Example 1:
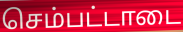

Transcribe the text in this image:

செம்பட்டாடை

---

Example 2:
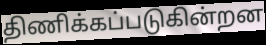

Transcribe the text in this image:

திணிக்கப்படுகின்றன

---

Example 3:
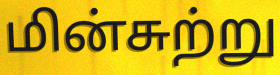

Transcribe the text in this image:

மின்சுற்று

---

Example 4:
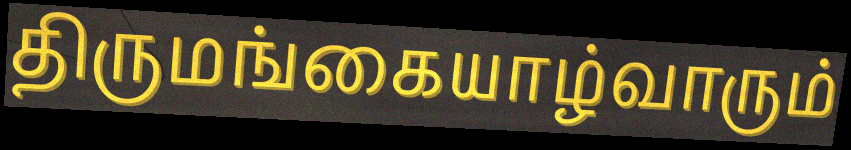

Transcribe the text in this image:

திருமங்கையாழ்வாரும்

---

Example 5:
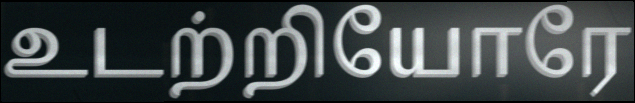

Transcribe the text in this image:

உடற்றியோரே